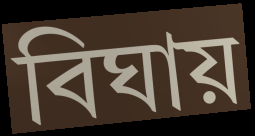
বিঘায়